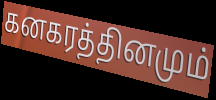
கனகரத்தினமும்